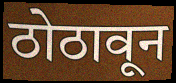
ठोठावून